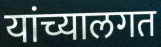
यांच्यालगत